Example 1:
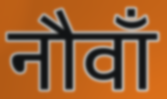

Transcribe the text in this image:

नौवाँ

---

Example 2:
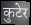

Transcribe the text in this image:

कुटेर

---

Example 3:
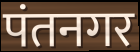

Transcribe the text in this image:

पंतनगर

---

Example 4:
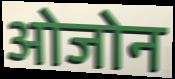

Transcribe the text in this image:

ओजोन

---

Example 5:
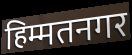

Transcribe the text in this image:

हिम्‍मतनगर